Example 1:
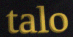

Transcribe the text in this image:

talo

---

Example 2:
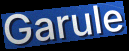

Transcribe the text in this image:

Garule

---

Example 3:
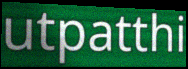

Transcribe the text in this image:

utpatthi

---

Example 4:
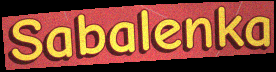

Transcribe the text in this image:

Sabalenka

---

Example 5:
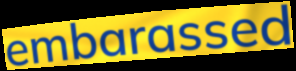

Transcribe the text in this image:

embarassed